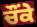
ਚੌਂਕੇ